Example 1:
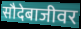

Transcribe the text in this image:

सौदेबाजीवर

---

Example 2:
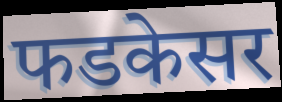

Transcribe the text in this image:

फडकेसर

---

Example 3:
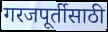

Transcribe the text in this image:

गरजपूर्तीसाठी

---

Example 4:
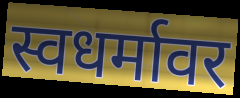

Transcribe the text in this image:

स्वधर्मावर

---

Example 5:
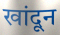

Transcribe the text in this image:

खांदून